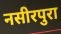
नसीरपुरा